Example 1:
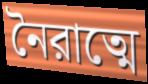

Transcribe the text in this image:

নৈরাত্মে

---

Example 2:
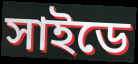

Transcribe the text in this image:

সাইডে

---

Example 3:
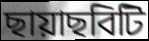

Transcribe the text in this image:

ছায়াছবিটি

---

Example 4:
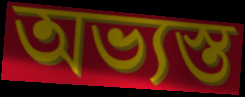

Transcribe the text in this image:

অভ্যস্ত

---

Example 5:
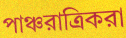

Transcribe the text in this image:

পাঞ্চরাত্রিকরা